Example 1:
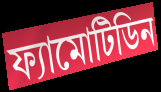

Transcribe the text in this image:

ফ্যামোটিডিন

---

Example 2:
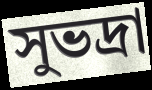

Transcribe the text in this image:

সুভদ্রা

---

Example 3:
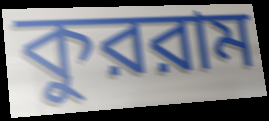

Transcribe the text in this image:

কুররাম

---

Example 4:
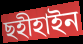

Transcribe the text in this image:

ছহীহাইন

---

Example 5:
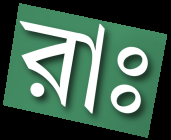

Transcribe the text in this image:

রাঃ